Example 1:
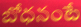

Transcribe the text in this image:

బోధనంటే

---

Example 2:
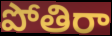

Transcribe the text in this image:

పోతిరా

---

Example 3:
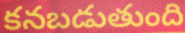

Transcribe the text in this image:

కనబడుతుంది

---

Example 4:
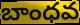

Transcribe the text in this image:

బాంధవ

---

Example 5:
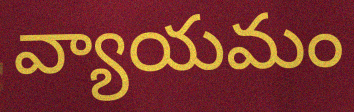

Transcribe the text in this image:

వ్యాయమం